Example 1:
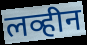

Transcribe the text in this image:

लव्हीन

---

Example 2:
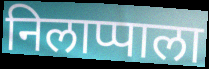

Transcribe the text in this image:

निलाप्पाला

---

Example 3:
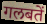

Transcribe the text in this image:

गलबतें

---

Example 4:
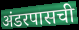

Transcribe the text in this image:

अंडरपासची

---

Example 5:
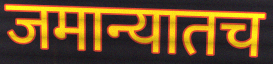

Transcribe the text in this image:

जमान्यातच